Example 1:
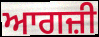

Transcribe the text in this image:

ਆਗਜ਼ੀ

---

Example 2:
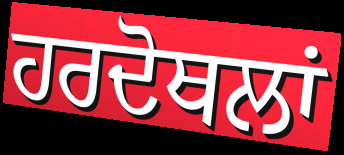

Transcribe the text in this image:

ਹਰਦੋਥਲਾਂ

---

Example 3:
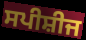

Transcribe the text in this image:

ਸਪੀਸ਼ੀਜ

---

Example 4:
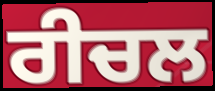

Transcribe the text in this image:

ਰੀਚਲ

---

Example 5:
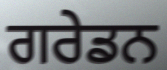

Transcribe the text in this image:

ਗਰੇਡਨ